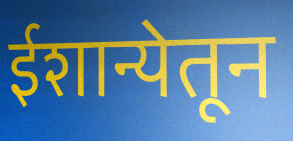
ईशान्येतून